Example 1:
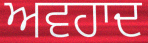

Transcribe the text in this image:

ਅਵਹਾਦ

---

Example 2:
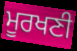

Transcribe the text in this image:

ਮੂਰਖਣੀ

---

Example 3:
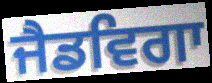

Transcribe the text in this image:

ਜੈਡਵਿਗਾ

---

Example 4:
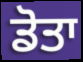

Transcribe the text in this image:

ਡੋਤਾ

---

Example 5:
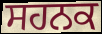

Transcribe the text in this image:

ਸਹਨਕ